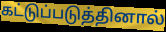
கட்டுப்படுத்தினால்